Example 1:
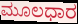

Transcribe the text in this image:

ಮೂಲಧಾರ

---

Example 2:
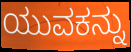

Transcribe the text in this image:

ಯುವಕನ್ನು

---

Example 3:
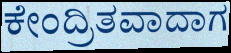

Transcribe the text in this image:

ಕೇಂದ್ರಿತವಾದಾಗ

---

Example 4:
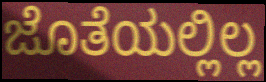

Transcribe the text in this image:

ಜೊತೆಯಲ್ಲಿಲ್ಲ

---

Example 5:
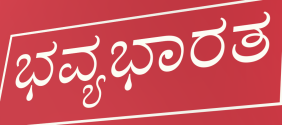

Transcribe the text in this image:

ಭವ್ಯಭಾರತ